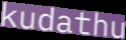
kudathu